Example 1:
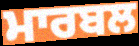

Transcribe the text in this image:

ਮਾਰਬਲ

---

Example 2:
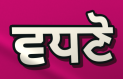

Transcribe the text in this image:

ਵਧਣੋ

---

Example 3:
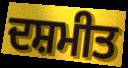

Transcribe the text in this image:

ਦਸ਼ਮੀਤ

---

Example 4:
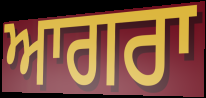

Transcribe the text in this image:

ਆਗਰਾ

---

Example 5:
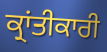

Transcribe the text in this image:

ਕ੍ਰਾਂਤੀਕਾਰੀ